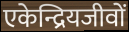
एकेन्द्रियजीवों